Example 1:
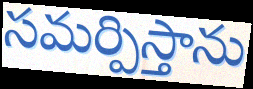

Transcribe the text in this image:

సమర్పిస్తాను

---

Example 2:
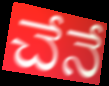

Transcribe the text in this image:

చేనే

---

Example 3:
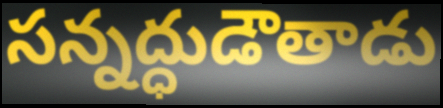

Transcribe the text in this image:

సన్నద్ధుడౌతాడు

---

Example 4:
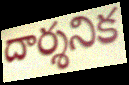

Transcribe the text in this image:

దార్శనిక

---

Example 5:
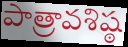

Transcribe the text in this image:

పాత్రావశిష్ఠ